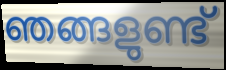
ഞങ്ങളുണ്ട്